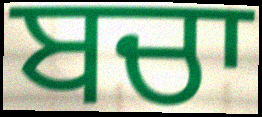
ਬਚਾ